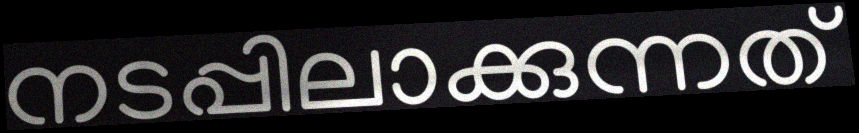
നടപ്പിലാക്കുന്നത്